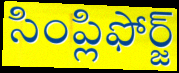
సింప్లిఫోర్జ్